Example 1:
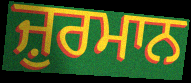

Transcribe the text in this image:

ਜ਼ੁਰਮਾਨ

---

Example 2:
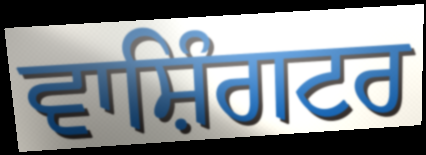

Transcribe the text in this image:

ਵਾਸ਼ਿੰਗਟਰ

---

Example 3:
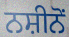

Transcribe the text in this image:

ਨਸ਼ੀਨੋਂ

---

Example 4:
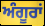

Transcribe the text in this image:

ਅੰਗੂਰਾਂ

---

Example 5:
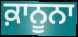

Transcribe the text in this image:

ਕ਼ਾਨੂਨਾ